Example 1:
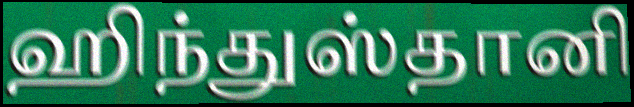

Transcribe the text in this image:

ஹிந்துஸ்தானி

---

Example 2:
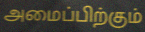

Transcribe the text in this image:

அமைப்பிற்கும்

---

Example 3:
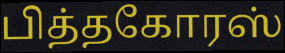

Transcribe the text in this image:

பித்தகோரஸ்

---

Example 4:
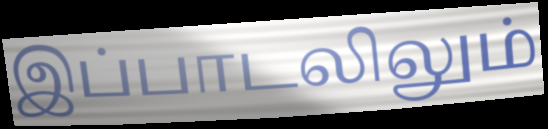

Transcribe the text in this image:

இப்பாடலிலும்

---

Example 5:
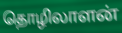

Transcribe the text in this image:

தொழிலாளன்